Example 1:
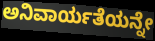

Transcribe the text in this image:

ಅನಿವಾರ್ಯತೆಯನ್ನೇ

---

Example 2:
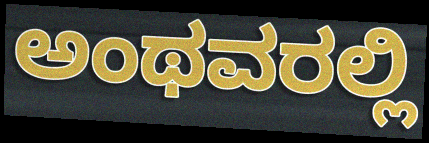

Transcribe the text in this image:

ಅಂಥವರಲ್ಲಿ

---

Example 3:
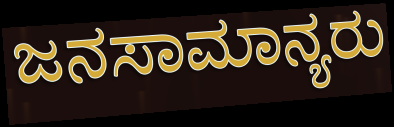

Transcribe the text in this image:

ಜನಸಾಮಾನ್ಯರು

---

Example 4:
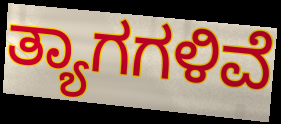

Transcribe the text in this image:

ತ್ಯಾಗಗಳಿವೆ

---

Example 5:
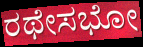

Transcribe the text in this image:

ರಥೇಸಭೋ